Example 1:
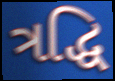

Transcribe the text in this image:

ત્રદ્ધિ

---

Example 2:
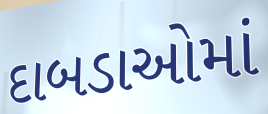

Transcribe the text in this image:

દાબડાઓમાં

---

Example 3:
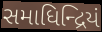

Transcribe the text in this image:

સમાધિન્દ્રિયં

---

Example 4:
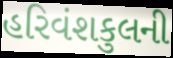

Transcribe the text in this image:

હરિવંશકુલની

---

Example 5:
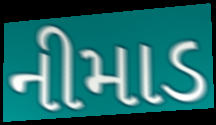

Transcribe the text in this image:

નીમાડ